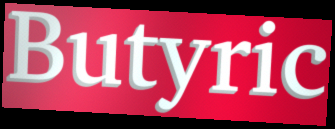
Butyric